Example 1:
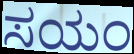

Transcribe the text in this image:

ಸಯಂ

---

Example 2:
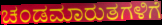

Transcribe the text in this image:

ಚಂಡಮಾರುತಗಳಿಗೆ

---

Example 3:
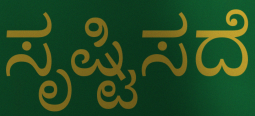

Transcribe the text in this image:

ಸೃಷ್ಟಿಸದೆ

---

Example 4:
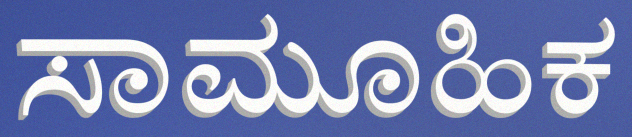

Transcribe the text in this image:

ಸಾಮೂಹಿಕ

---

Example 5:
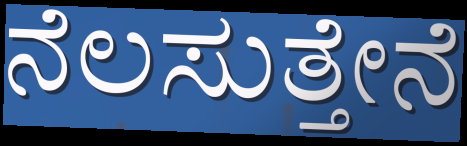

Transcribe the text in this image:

ನೆಲಸುತ್ತೇನೆ